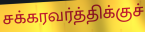
சக்கரவர்த்திக்குச்